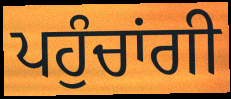
ਪਹੁੰਚਾਂਗੀ